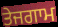
ਤੇਜਗਾਮ